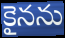
కైనను